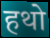
हथो